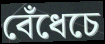
বেঁধেচে